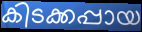
കിടക്കപ്പായ